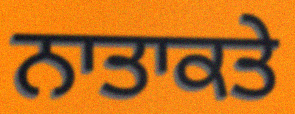
ਨਾਤਾਕਤੇ